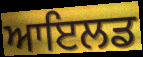
ਆਇਲਡ